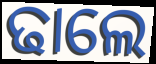
ଢାଲେ